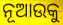
ନୂଆଉକୁ